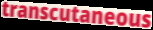
transcutaneous